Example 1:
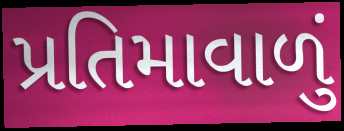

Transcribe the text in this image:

પ્રતિમાવાળું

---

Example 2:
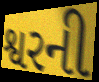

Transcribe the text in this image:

શ્વરની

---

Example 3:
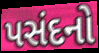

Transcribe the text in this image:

પસંદનો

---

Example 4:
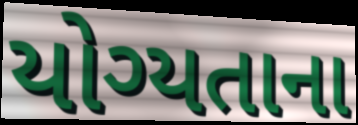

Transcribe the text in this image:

યોગ્યતાના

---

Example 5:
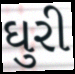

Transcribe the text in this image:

ઘુરી